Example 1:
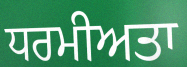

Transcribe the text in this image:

ਧਰਮੀਅਤਾ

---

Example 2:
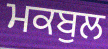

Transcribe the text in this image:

ਮਕਬੁਲ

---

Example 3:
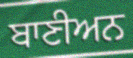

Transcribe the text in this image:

ਬਾਣੀਅਨ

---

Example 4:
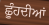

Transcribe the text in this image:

ਛੂੰਹਦੀਆਂ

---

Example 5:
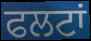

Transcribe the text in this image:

ਫਲਟਾਂ